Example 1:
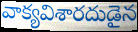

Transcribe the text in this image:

వాక్యవిశారదుడైన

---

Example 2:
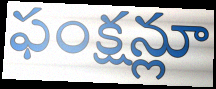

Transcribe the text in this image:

ఫంక్షన్లూ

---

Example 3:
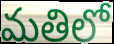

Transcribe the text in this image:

మతిలో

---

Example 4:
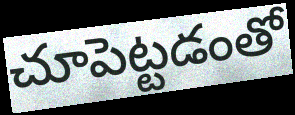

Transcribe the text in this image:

చూపెట్టడంతో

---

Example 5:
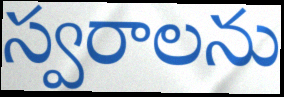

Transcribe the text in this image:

స్వరాలను